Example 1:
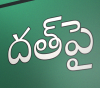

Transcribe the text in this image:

దత్‌పై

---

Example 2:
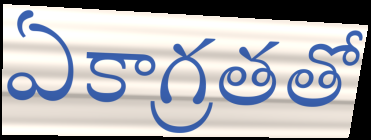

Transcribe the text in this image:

ఏకాగ్రతతో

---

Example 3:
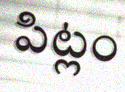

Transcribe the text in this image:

పిట్లం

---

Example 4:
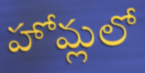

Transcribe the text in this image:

హోమ్లలో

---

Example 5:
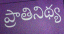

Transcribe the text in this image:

ప్రాతినిథ్య